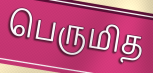
பெருமித